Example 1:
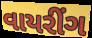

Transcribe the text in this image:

વાયરીંગ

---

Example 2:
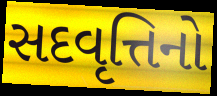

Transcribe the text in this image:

સદવૃત્તિનો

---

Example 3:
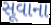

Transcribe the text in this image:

સૂવાના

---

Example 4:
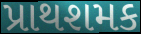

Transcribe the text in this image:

પ્રાથશમક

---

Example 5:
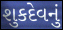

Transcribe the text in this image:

શુકદેવનું